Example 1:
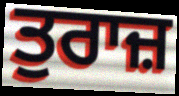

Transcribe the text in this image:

ਤੁਰਾਜ਼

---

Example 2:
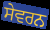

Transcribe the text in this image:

ਸੇਵਰਨ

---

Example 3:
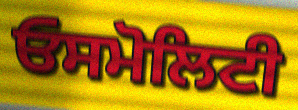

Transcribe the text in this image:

ਓਸਮੋਲਿਟੀ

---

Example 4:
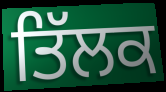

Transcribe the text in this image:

ਤਿੱਲਕ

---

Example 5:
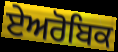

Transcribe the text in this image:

ਏਅਰੋਬਿਕ